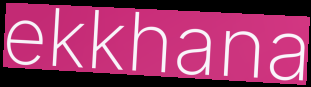
ekkhana